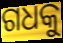
ଗଧକୁ